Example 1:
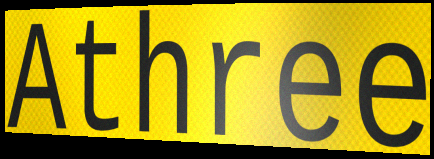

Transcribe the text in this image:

Athree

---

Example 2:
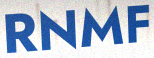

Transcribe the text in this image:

RNMF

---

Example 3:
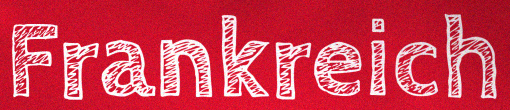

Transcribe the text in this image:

Frankreich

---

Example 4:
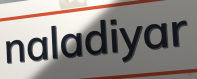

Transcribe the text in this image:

naladiyar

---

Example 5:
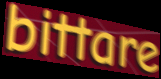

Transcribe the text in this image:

bittare